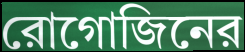
রোগোজিনের